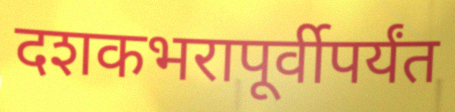
दशकभरापूर्वीपर्यंत